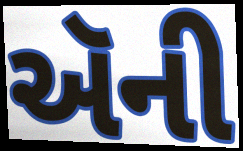
ઍની